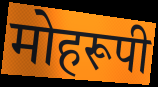
मोहरूपी